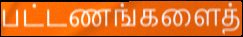
பட்டணங்களைத்